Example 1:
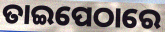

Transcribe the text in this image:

ତାଇପେଠାରେ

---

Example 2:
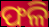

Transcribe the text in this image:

ଫଳି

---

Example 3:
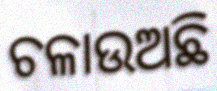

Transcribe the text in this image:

ଚଳାଉଅଛି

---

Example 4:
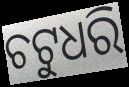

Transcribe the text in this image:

ଚଟୁଧରି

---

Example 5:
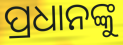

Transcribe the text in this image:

ପ୍ରଧାନଙ୍କୁ